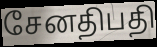
சேனதிபதி